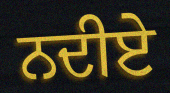
ਨਦੀਏ